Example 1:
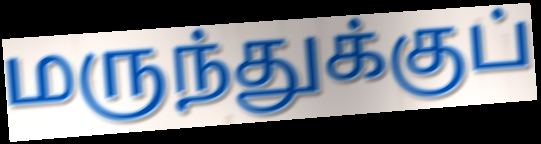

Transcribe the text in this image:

மருந்துக்குப்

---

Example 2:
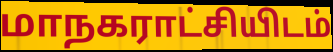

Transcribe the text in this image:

மாநகராட்சியிடம்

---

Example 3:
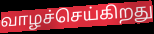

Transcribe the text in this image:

வாழச்செய்கிறது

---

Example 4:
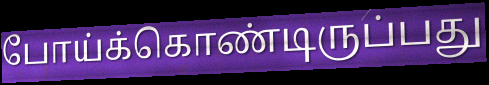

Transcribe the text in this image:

போய்க்கொண்டிருப்பது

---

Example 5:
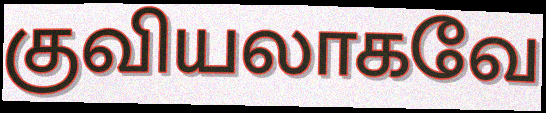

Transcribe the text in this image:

குவியலாகவே